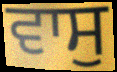
ਵਾਸੁ